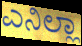
ಎನಿಲ್ಲಾ